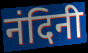
नंदिनी